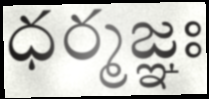
ధర్మజ్ఞః